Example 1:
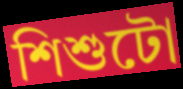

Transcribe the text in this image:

শিশুটো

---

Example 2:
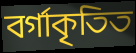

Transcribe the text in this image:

বৰ্গাকৃতিত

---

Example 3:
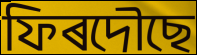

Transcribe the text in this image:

ফিৰদৌছে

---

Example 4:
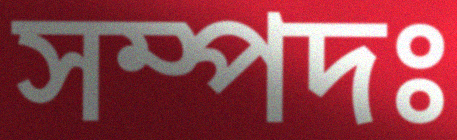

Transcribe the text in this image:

সম্পদঃ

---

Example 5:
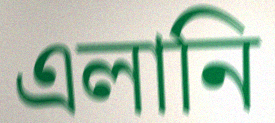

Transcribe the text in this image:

এলানি